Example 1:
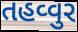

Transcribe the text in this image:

તહવ્વુર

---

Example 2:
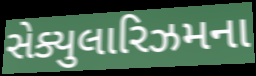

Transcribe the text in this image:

સેક્યુલારિઝમના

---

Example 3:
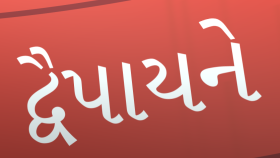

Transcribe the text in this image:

દ્વૈપાયને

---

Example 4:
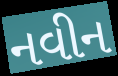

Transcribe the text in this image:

નવીન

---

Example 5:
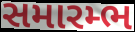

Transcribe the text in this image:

સમારમ્ભ